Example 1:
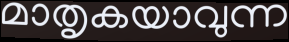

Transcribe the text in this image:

മാതൃകയാവുന്ന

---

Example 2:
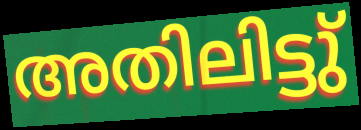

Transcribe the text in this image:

അതിലിട്ടു്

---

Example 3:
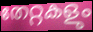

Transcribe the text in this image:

തേറ്റകളും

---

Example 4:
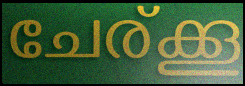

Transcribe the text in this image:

ചേര്ക്കൂ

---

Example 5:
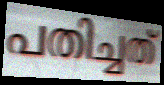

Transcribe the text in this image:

പതിച്ചത്